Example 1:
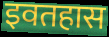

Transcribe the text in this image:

इवतहास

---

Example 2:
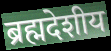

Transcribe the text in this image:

ब्रह्मदेशीय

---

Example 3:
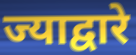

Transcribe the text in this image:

ज्याद्वारे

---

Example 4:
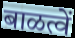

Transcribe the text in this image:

बाळत्वें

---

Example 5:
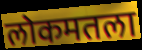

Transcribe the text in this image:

लोकमतला